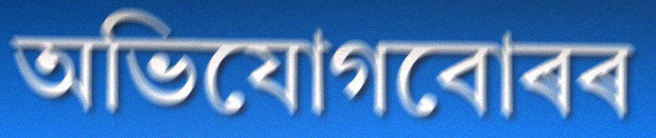
অভিযোগবোৰৰ